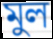
মুল